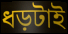
ধড়টাই